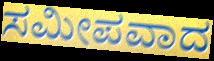
ಸಮೀಪವಾದ